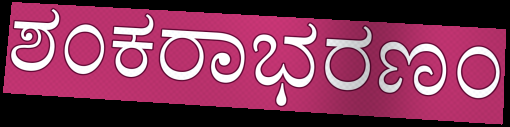
ಶಂಕರಾಭರಣಂ